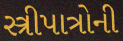
સ્ત્રીપાત્રોની